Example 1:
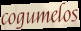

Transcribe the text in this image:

cogumelos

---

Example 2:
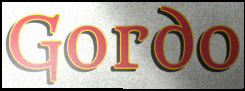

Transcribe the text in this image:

Gordo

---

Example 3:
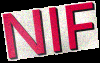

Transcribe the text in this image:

NIF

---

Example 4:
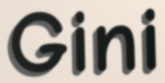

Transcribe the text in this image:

Gini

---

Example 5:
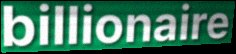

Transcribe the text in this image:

billionaire